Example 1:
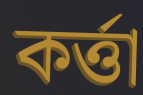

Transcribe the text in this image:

কৰ্ত্তা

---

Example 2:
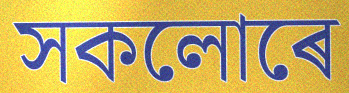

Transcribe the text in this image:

সকলোৰে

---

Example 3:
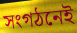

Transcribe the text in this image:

সংগঠনেই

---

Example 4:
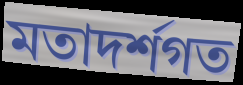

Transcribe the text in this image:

মতাদৰ্শগত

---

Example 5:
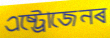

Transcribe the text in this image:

এষ্ট্ৰোজেনৰ